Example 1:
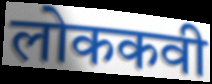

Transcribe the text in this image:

लोककवी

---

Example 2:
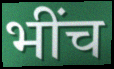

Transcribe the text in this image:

भींच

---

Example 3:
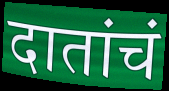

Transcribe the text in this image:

दातांचं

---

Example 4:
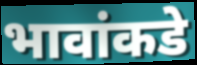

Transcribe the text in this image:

भावांकडे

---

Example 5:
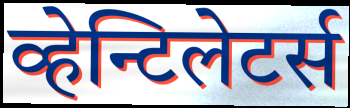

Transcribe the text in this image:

व्हेन्टिलेटर्स